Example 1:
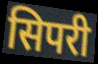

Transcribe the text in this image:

सिपरी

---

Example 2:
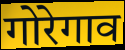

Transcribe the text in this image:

गोरेगाव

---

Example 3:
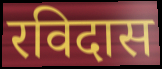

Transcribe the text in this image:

रविदास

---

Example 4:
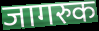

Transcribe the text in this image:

जागरुक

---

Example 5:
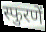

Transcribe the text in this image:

स्फुरणें